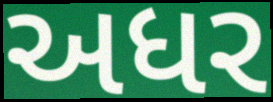
અધર